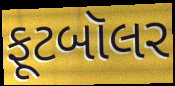
ફૂટબૉલર